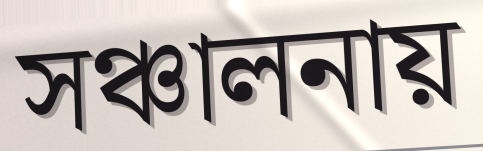
সঞ্চালনায়